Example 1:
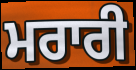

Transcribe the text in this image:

ਮਰਾਰੀ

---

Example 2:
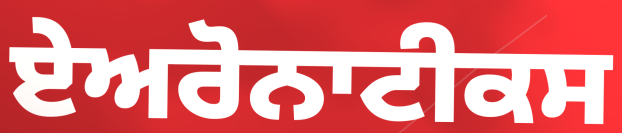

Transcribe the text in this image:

ਏਅਰੋਨਾਟੀਕਸ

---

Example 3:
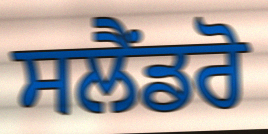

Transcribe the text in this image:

ਸਲੈਂਡਰੋ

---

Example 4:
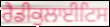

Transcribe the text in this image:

ਰੈਡੀਕੁਲਾਈਟਿਸ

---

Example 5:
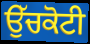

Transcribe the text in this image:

ਉੱਚਕੋਟੀ